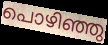
പൊഴിഞ്ഞു